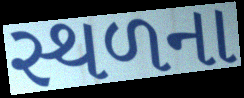
સ્થળના